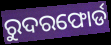
ରୁଦରଫୋର୍ଡ